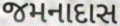
જમનાદાસ